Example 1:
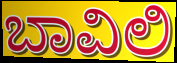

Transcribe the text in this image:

ಬಾವಿಲಿ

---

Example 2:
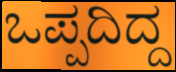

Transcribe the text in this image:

ಒಪ್ಪದಿದ್ದ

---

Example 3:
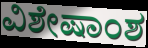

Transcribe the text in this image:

ವಿಶೇಷಾಂಶ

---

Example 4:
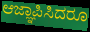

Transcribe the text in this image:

ಆಜ್ಞಾಪಿಸಿದರೂ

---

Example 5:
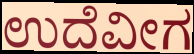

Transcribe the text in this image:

ಉದೆವೀಗ